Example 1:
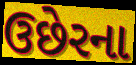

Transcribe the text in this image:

ઉછેરના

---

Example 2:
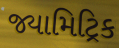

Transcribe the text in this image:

જ્યામિટ્રિક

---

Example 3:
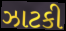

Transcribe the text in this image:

ઝાટકી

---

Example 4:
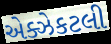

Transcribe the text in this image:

એક્ઝેકટલી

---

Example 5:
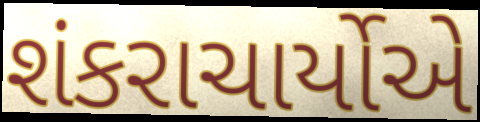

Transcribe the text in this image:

શંકરાચાર્યોએ